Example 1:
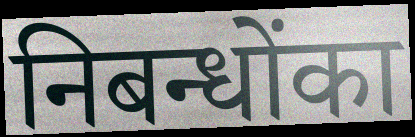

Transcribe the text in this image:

निबन्धोंका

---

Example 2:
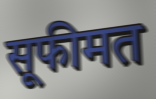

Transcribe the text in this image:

सूफीमत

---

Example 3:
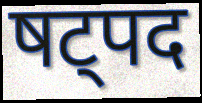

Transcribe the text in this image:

षट्पद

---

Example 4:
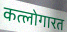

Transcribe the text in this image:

कत्लोगारत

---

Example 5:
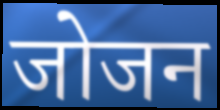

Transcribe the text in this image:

जोजन